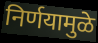
निर्णयामुळे